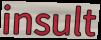
insult